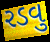
રડવુ